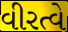
વીરત્વે